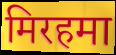
मिरहमा